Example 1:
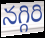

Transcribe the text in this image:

నగ్గిరి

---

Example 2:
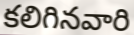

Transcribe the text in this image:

కలిగినవారి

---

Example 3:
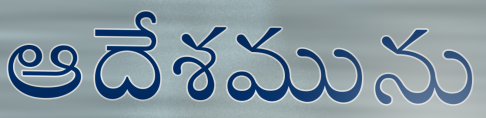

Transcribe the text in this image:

ఆదేశమును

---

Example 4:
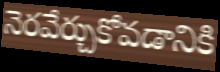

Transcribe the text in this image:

నెరవేర్చుకోవడానికి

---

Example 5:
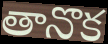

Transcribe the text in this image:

తానొక